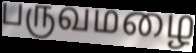
பருவமழை